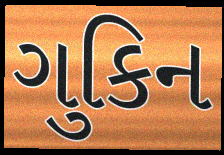
ગુકિન